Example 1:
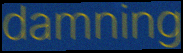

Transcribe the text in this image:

damning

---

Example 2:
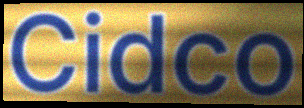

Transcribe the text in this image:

Cidco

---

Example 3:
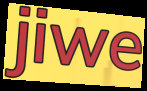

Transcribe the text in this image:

jiwe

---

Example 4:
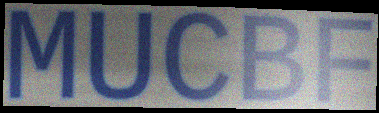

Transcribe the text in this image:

MUCBF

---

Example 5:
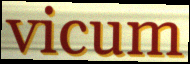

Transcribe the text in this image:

vicum